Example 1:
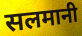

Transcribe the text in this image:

सलमानी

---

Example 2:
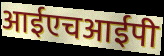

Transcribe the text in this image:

आईएचआईपी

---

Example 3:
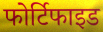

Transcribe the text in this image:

फोर्टिफाइड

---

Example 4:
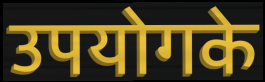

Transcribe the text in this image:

उपयोगके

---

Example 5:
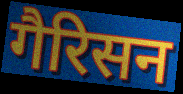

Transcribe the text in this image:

गैरिसन